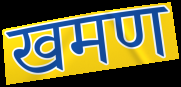
खमण